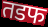
तडफ